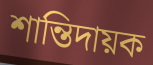
শান্তিদায়ক